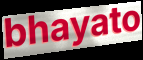
bhayato